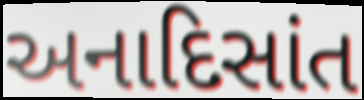
અનાદિસાંત